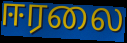
ஈரலை